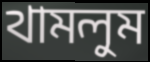
থামলুম